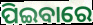
ପିଇବାରେ